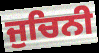
ਜੁਚਿਨੀ